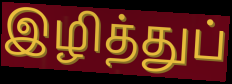
இழித்துப்